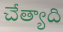
చేత్యాది